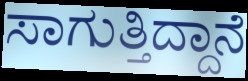
ಸಾಗುತ್ತಿದ್ದಾನೆ